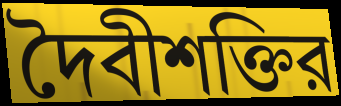
দৈবীশক্তির